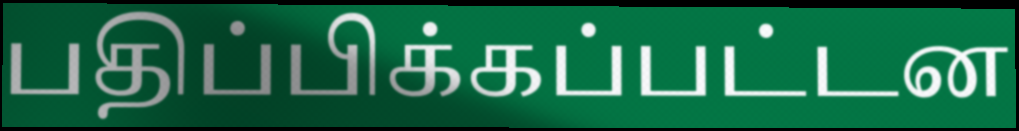
பதிப்பிக்கப்பட்டன